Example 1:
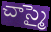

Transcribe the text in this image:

చాస్మై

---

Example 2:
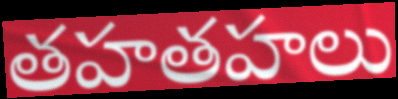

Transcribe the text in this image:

తహతహలు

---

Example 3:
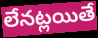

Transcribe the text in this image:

లేనట్లయితే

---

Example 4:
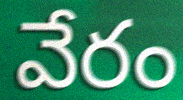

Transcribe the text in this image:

వేరం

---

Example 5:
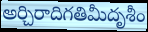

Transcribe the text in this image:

అర్చిరాదిగతిమీదృశీం